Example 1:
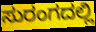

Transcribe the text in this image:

ಸುರಂಗದಲ್ಲಿ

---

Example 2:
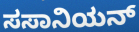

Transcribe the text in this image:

ಸಸಾನಿಯನ್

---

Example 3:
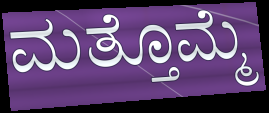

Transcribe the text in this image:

ಮತ್ತೊಮ್ಮೆ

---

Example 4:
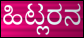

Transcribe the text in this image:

ಹಿಟ್ಲರನ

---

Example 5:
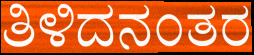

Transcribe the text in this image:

ತಿಳಿದನಂತರ